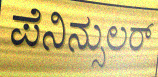
ಪೆನಿನ್ಸುಲರ್